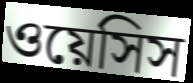
ওয়েসিস